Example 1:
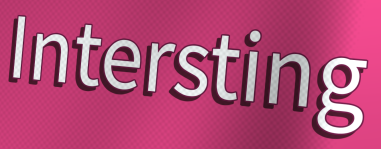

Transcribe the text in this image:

Intersting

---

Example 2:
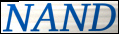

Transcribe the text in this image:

NAND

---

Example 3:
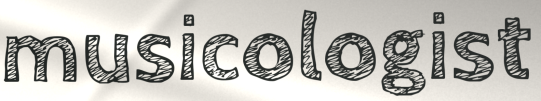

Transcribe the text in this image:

musicologist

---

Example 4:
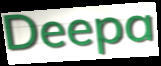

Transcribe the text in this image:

Deepa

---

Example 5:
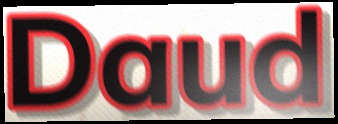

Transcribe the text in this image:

Daud